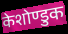
केशोण्डुक